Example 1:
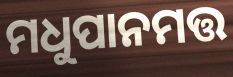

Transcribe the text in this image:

ମଧୁପାନମତ୍ତ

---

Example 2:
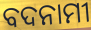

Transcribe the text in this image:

ବଦନାମୀ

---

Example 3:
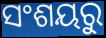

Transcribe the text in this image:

ସଂଶୟରୁ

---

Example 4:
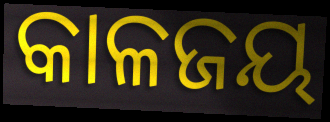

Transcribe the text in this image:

କାଳଜୟ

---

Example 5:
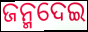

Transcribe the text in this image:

ଜନ୍ମଦେଇ